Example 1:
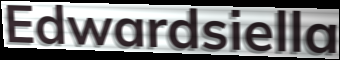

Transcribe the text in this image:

Edwardsiella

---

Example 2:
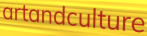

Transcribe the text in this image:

artandculture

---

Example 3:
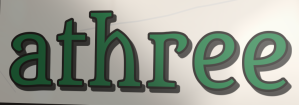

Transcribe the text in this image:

athree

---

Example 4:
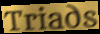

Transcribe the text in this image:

Triads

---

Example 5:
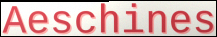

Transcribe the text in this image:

Aeschines